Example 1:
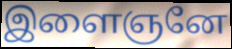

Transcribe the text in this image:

இளைஞனே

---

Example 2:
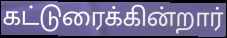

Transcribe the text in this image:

கட்டுரைக்கின்றார்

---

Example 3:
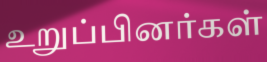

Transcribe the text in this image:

உறுப்பினர்கள்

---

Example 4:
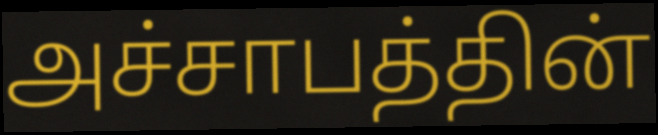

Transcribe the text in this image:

அச்சாபத்தின்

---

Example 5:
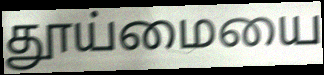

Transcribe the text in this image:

தூய்மையை